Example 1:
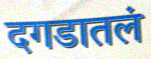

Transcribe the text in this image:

दगडातलं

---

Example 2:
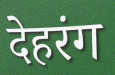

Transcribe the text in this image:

देहरंग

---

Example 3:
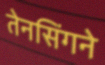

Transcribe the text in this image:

तेनसिंगने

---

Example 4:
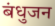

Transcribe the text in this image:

बंधुजन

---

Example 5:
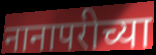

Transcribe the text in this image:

नानापरीच्या